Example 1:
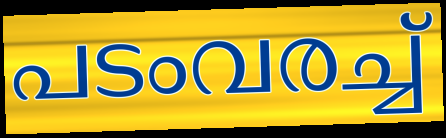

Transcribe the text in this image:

പടംവരച്ച്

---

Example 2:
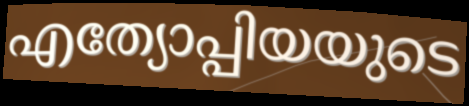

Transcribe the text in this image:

എത്യോപ്പിയയുടെ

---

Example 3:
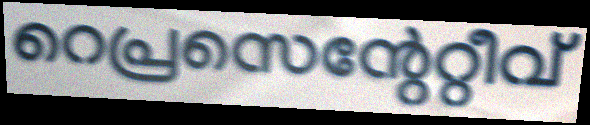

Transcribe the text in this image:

റെപ്രസെന്റേറ്റീവ്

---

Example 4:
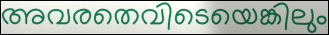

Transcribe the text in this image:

അവരതെവിടെയെങ്കിലും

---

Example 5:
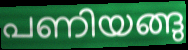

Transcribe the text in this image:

പണിയങ്ങു